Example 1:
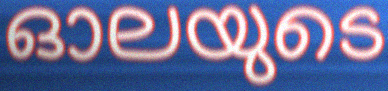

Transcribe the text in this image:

ഓലയുടെ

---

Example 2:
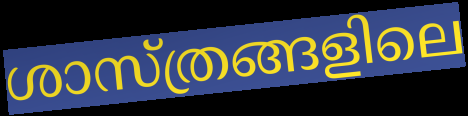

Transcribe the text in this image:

ശാസ്ത്രങ്ങളിലെ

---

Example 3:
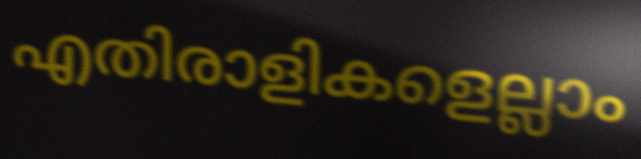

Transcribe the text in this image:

എതിരാളികളെല്ലാം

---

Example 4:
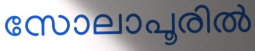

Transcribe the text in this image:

സോലാപൂരിൽ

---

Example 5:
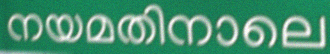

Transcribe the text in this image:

നയമതിനാലെ